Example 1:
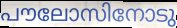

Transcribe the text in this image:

പൗലോസിനോടു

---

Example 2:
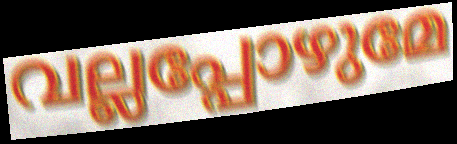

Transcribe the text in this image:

വല്ലപ്പോഴുമേ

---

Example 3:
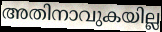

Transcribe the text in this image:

അതിനാവുകയില്ല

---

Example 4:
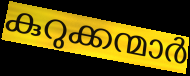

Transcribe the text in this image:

കുറുക്കന്മാർ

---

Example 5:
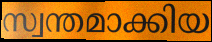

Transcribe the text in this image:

സ്വന്തമാക്കിയ